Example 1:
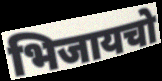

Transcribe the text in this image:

भिजायचो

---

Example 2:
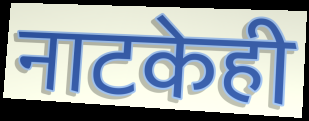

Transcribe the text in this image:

नाटकेही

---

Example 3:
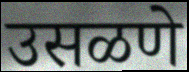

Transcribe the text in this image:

उसळणे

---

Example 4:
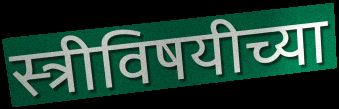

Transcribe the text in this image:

स्त्रीविषयीच्या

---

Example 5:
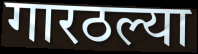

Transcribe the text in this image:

गारठल्या